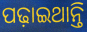
ପଢ଼ାଇଥାନ୍ତି